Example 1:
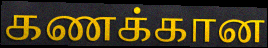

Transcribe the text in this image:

கணக்கான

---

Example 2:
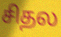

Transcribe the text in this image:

சிதல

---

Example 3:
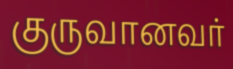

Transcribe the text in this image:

குருவானவர்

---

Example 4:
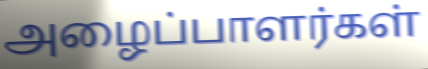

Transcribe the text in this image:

அழைப்பாளர்கள்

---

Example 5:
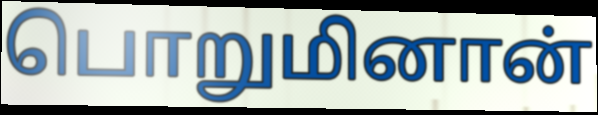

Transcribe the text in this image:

பொறுமினான்